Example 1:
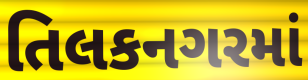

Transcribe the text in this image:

તિલકનગરમાં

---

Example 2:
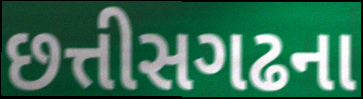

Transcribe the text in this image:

છત્તીસગઢના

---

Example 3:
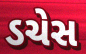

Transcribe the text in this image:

ડચેસ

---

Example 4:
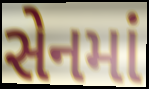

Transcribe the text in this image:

સેનમાં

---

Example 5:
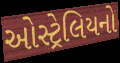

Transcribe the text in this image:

ઓસ્ટ્રેલિયનો